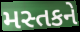
મસ્તકને